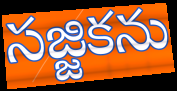
సజ్జికను